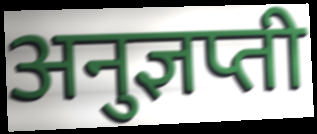
अनुज्ञप्ती